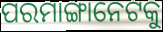
ପରମାଙ୍ଗାନେଟକୁ